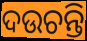
ଦଉଚନ୍ତି